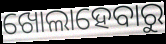
ଖୋଲାହେବାରୁ